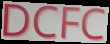
DCFC